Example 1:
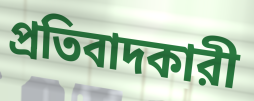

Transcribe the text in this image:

প্রতিবাদকারী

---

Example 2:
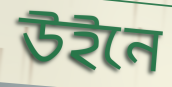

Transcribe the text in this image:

উইনে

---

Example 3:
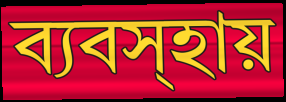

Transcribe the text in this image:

ব্যবস্হায়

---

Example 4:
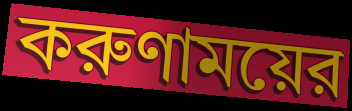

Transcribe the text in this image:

করুণাময়ের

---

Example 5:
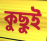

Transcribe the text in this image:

কুছুই